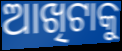
ଆଖିଟାକୁ